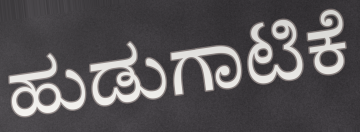
ಹುಡುಗಾಟಿಕೆ